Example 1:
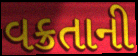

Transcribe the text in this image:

વક્રતાની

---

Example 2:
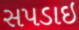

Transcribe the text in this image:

સપડાઇ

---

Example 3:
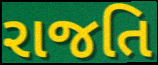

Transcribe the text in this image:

રાજતિ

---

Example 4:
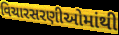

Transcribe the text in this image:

વિચારસરણીઓમાંથી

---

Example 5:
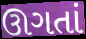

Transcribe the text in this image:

ઊગતાં